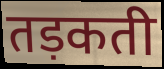
तड़कती